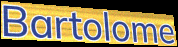
Bartolome